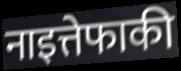
नाइत्तेफाकी